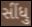
સીંધુ